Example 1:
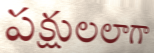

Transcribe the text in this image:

పక్షులలాగా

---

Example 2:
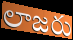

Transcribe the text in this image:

లాజరు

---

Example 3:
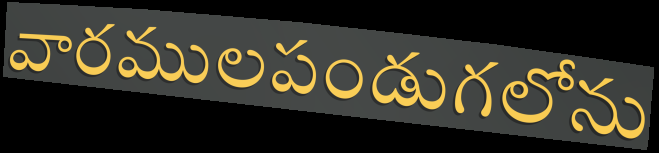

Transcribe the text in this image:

వారములపండుగలోను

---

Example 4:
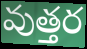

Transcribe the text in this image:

వుత్తర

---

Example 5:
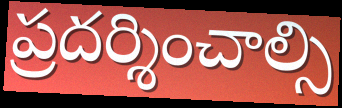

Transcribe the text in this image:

ప్రదర్శించాల్సి